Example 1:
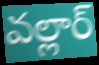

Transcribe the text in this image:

వల్లార్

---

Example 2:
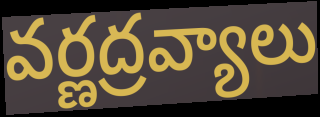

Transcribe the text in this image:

వర్ణద్రవ్యాలు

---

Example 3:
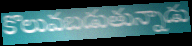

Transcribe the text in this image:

కొలువబడుతున్నాడు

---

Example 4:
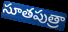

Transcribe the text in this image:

సూతపుత్రా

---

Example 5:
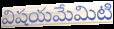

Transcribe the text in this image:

విషయమేమిటి